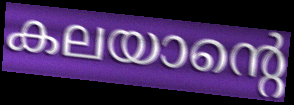
കലയാന്റെ